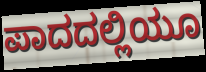
ಪಾದದಲ್ಲಿಯೂ